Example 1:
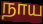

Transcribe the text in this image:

நாய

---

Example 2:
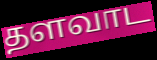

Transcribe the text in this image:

தளவாட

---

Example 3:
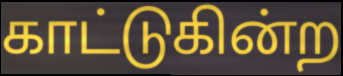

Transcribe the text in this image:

காட்டுகின்ற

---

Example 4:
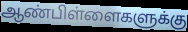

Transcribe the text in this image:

ஆண்பிள்ளைகளுக்கு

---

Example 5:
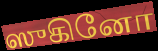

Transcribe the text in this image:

ஸுகினோ